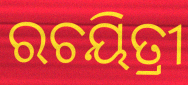
ରଚୟିତ୍ରୀ